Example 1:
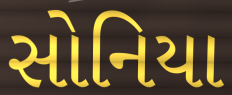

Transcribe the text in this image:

સોનિયા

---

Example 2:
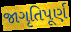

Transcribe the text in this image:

જાગૃતિપૂર્ણ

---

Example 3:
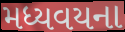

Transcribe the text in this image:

મધ્યવયના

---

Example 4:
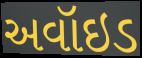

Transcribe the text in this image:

અવૉઇડ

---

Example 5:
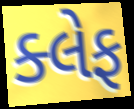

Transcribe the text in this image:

ક્લેફ